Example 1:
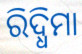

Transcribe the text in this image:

ରିଦ୍ଧିମା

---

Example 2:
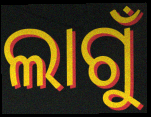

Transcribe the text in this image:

ଲାଗୁଁ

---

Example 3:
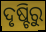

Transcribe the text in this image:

ଦୃଷ୍ଚିରୁ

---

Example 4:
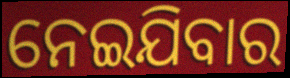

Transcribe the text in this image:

ନେଇଯିବାର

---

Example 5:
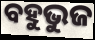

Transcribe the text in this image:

ବହୁଭୁଜ